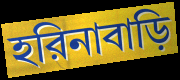
হরিনাবাড়ি